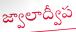
జ్వాలాద్వీప